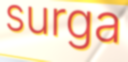
surga